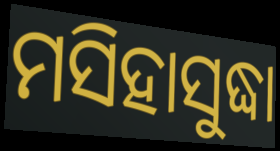
ମସିହାସୁଦ୍ଧା